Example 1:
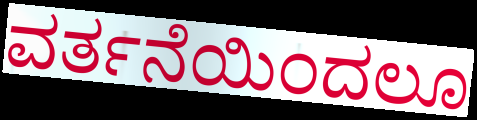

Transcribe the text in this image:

ವರ್ತನೆಯಿಂದಲೂ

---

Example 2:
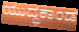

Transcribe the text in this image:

ಯುದ್ಧಕಾಂಡ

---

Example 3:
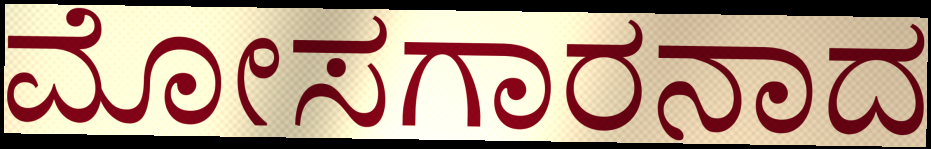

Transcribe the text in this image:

ಮೋಸಗಾರನಾದ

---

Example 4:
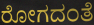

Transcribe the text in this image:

ರೋಗದಂತೆ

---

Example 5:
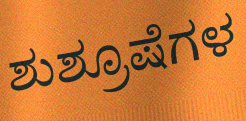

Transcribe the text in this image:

ಶುಶ್ರೂಷೆಗಳ